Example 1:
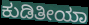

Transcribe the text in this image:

ಕುಡಿತೀಯಾ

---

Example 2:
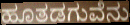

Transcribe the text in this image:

ಹೂತಡಗುವೆನು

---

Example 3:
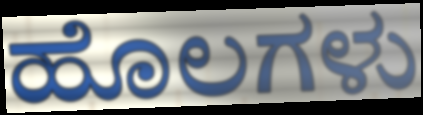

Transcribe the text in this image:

ಹೊಲಗಳು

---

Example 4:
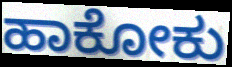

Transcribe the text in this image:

ಹಾಕೋಕು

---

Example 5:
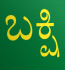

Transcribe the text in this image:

ಬಕ್ಷಿ